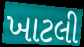
ખાટલી